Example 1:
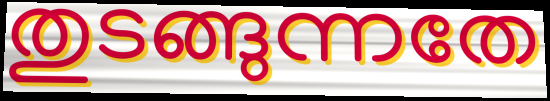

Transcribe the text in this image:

തുടങ്ങുന്നതേ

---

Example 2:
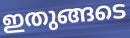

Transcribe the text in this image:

ഇതുങ്ങടെ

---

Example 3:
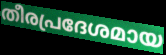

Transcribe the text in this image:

തീരപ്രദേശമായ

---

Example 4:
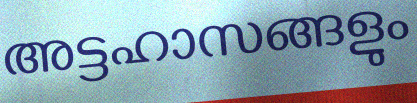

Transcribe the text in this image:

അട്ടഹാസങ്ങളും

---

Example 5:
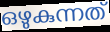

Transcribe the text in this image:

ഒഴുകുന്നത്